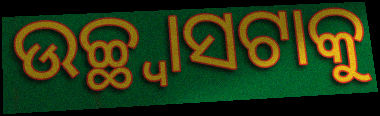
ଉଚ୍ଛ୍ୱାସଟାକୁ